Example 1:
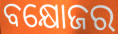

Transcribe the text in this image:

ବକ୍ଷୋଜର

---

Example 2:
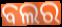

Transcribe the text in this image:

ବଲର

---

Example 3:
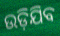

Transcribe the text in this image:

ଉଡ଼ିଯିବ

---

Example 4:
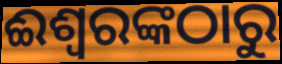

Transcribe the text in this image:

ଈଶ୍ଵରଙ୍କଠାରୁ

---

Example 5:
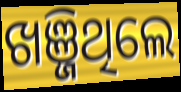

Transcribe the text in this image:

ଖଞ୍ଜିଥିଲେ